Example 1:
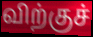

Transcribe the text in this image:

விற்குச்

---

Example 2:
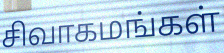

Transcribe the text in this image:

சிவாகமங்கள்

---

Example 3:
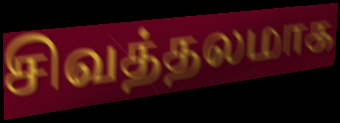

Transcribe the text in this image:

சிவத்தலமாக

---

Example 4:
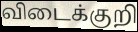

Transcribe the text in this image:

விடைக்குறி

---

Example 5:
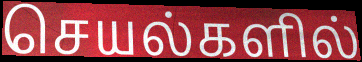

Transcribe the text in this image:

செயல்களில்